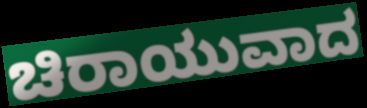
ಚಿರಾಯುವಾದ